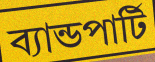
ব্যান্ডপার্টি